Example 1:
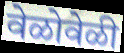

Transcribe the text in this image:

वेळोवेळी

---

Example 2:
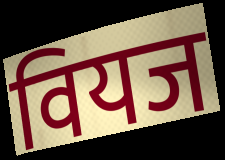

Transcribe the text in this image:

वियज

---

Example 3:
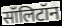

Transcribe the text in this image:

सॉलिटॉन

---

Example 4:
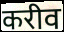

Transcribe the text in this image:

करीव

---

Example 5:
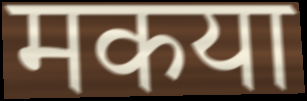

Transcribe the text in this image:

मकया